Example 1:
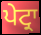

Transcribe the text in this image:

ਪੇਟ੍ਰਾ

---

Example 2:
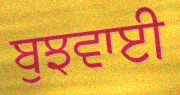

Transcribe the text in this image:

ਬੁਝਵਾਈ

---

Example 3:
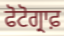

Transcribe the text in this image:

ਫੋਟੋਗ੍ਰਾਫ਼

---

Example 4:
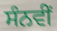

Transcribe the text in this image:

ਸੰਨਵੀਂ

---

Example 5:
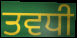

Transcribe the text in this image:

ਤਵਧੀ